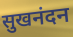
सुखनंदन